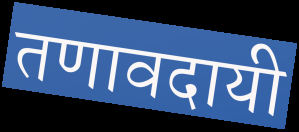
तणावदायी